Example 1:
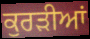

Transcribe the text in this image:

ਕੁਰੜੀਆਂ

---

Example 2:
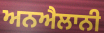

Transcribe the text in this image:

ਅਨਐਲਾਨੀ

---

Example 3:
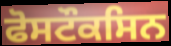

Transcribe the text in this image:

ਫੋਸਟੌਕਸਿਨ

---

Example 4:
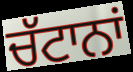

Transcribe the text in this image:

ਚੱਟਾਨਾਂ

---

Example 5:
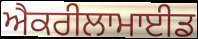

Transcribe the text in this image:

ਐਕਰੀਲਾਮਾਈਡ